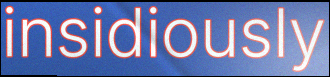
insidiously